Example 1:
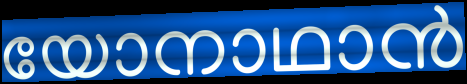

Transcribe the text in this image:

യോനാഥാൻ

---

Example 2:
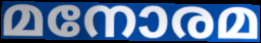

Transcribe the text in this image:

മനോരമ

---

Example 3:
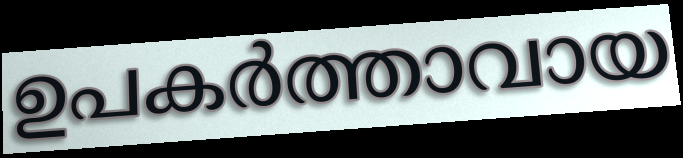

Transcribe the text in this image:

ഉപകർത്താവായ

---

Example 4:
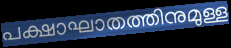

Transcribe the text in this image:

പക്ഷാഘാതത്തിനുമുള്ള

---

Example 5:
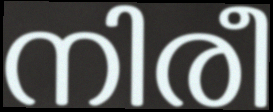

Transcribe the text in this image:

നിരീ